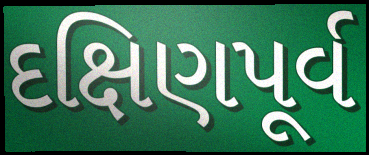
દક્ષિણપૂર્વ